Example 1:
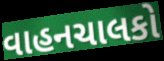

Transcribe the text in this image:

વાહનચાલકો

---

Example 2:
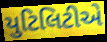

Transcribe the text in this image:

યુટિલિટીએ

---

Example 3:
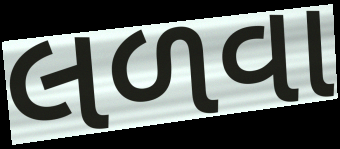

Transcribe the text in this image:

લળવા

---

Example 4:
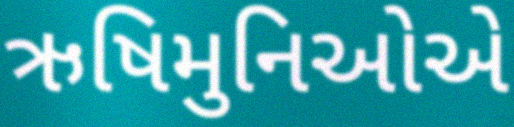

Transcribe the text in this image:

ઋષિમુનિઓએ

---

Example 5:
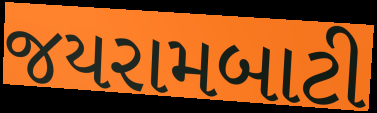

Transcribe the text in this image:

જયરામબાટી